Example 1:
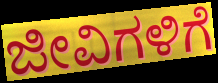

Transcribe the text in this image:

ಜೀವಿಗಳಿಗೆ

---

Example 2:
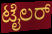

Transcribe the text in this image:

ಟೈಲರ್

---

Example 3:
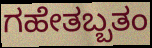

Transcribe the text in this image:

ಗಹೇತಬ್ಬತಂ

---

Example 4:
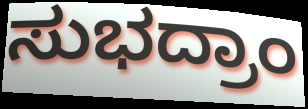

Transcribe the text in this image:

ಸುಭದ್ರಾಂ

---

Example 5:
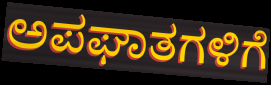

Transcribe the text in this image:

ಅಪಘಾತಗಳಿಗೆ